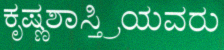
ಕೃಷ್ಣಶಾಸ್ತ್ರಿಯವರು